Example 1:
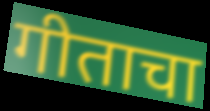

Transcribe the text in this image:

गीताचा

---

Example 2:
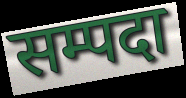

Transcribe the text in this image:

सम्पदा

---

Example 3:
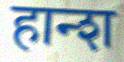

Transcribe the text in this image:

हान्श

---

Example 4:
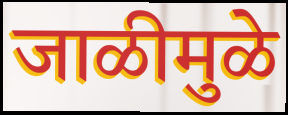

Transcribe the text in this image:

जाळीमुळे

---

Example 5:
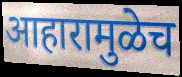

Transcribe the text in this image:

आहारामुळेच